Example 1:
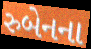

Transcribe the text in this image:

રુબેનના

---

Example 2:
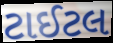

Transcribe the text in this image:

ટાઈટલ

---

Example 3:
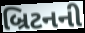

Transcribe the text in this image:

બ્રિટનની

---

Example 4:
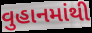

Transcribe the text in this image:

વુહાનમાંથી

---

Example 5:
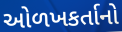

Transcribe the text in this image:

ઓળખકર્તાનો